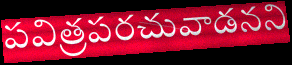
పవిత్రపరచువాడనని